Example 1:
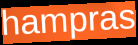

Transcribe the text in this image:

hampras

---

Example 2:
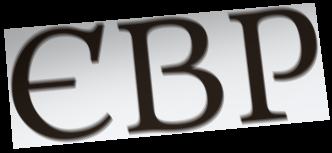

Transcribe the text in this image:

EBP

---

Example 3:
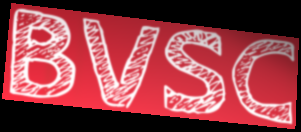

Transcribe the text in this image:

BVSC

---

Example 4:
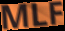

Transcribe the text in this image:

MLF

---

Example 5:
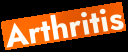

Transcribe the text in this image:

Arthritis